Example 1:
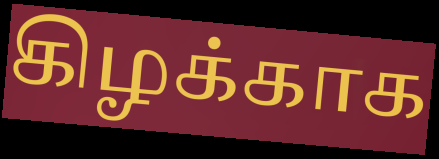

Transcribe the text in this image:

கிழக்காக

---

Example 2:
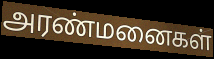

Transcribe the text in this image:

அரண்மனைகள்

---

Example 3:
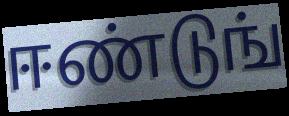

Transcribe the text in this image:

ஈண்டுங்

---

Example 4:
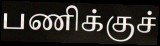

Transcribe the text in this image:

பணிக்குச்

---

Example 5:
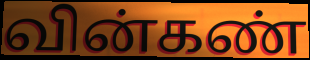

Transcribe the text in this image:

வின்கண்